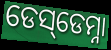
ଡେସ୍‌ଡେମ୍ନା